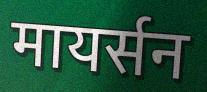
मायर्सन